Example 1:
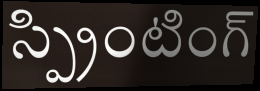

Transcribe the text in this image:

స్ప్రింటింగ్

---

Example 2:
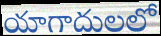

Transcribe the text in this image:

యాగాదులలో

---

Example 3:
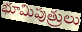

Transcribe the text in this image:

భూమిపుత్రులు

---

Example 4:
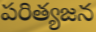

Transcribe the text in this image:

పరిత్యజన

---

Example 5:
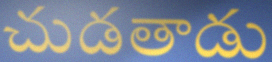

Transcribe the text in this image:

చుడతాడు